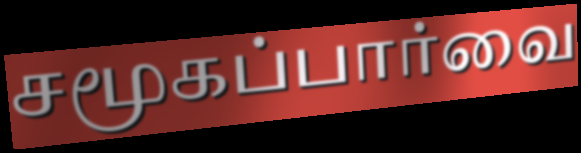
சமூகப்பார்வை